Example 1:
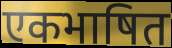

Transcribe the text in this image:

एकभाषित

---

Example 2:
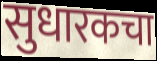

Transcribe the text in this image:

सुधारकचा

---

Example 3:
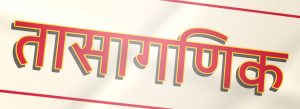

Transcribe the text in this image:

तासागणिक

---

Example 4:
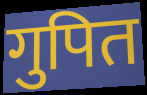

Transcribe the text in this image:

गुपित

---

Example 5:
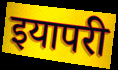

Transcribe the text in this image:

इयापरी